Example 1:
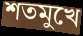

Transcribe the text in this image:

শতমুখে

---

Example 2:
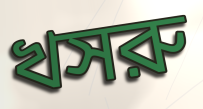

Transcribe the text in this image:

খসরু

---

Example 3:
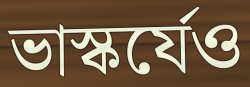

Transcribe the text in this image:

ভাস্কর্যেও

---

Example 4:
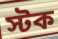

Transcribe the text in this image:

স্টক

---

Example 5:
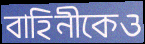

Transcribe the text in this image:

বাহিনীকেও